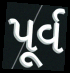
પૂર્વ